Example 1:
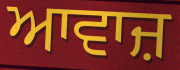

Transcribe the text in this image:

ਆਵਾਜ਼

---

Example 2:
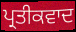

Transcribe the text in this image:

ਪ੍ਰਤੀਕਵਾਦ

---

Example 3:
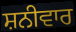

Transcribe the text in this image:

ਸ਼ਨੀਵਾਰ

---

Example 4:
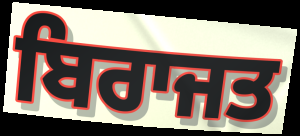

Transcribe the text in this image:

ਬਿਰਾਜਤ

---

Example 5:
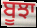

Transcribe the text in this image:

ਬੂਝਾ